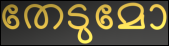
തേടുമോ